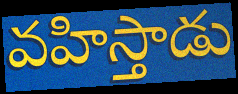
వహిస్తాడు